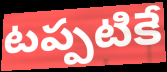
టప్పటికే